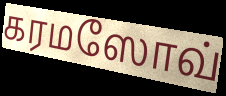
கரமஸோவ்